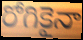
రోగికైనా